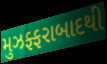
મુઝફ્ફરાબાદથી